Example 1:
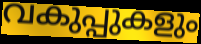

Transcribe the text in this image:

വകുപ്പുകളും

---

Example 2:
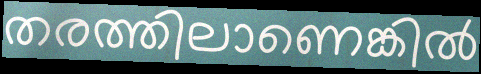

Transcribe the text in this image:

തരത്തിലാണെങ്കിൽ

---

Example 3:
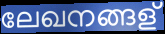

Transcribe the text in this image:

ലേഖനങ്ങള്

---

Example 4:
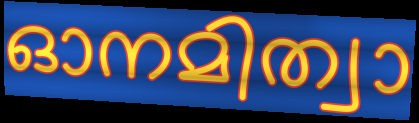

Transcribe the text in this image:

ഓനമിത്വാ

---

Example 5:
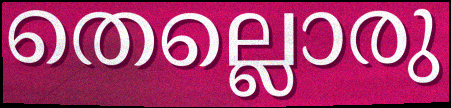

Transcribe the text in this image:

തെല്ലൊരു